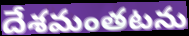
దేశమంతటను